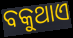
ବକୁଥାଏ